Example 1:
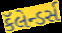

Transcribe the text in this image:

કૅલેન્ડર્સ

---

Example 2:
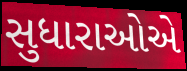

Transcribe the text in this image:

સુધારાઓએ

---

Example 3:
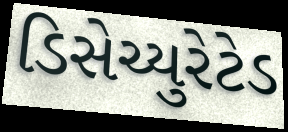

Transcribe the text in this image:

ડિસેચ્યુરેટેડ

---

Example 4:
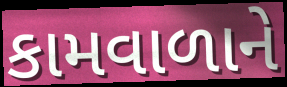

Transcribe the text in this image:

કામવાળાને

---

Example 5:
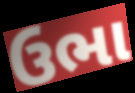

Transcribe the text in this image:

ઉભા